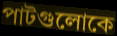
পাটগুলোকে